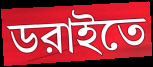
ডরাইতে